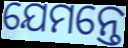
ଯେମନ୍ତେ